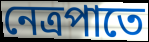
নেত্রপাতে